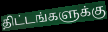
திட்டங்களுக்கு